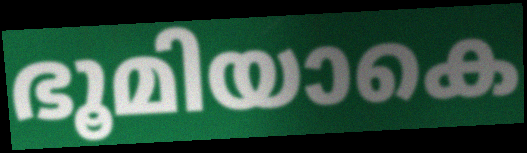
ഭൂമിയാകെ